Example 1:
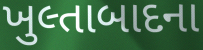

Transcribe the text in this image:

ખુલ્તાબાદના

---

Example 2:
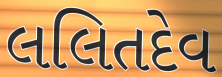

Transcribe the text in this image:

લલિતદેવ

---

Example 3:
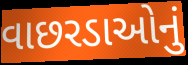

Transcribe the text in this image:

વાછરડાઓનું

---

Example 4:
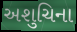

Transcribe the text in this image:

અશુચિના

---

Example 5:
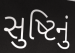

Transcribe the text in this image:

સુષ્ટિનું